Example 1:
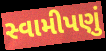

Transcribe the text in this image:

સ્વામીપણું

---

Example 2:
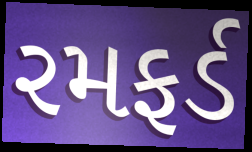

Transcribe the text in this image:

રમફર્ડ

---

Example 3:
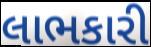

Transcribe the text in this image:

લાભકારી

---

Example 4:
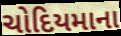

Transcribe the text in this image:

ચોદિયમાના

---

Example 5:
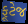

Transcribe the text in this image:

ફૂટેજ